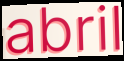
abril